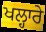
ਖਲ੍ਹਾਰੇ